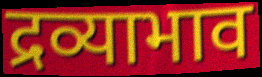
द्रव्याभाव